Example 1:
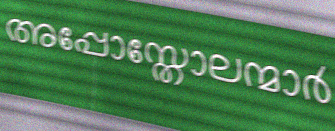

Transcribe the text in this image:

അപ്പോസ്തോലന്മാർ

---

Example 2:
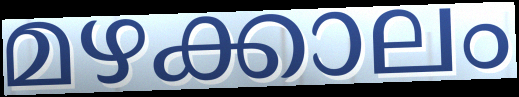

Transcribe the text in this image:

മഴക്കാലം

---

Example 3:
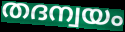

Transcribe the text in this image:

തദന്വയം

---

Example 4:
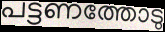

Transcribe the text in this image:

പട്ടണത്തോടു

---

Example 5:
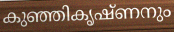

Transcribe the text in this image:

കുഞ്ഞികൃഷ്ണനും